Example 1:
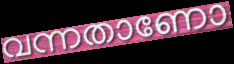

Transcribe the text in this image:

വന്നതാണോ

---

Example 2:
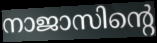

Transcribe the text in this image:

നാജാസിന്റെ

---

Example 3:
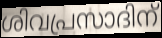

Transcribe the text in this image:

ശിവപ്രസാദിന്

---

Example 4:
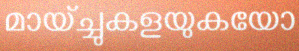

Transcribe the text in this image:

മായ്ച്ചുകളയുകയോ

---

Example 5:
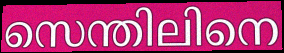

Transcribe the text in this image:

സെന്തിലിനെ